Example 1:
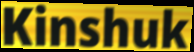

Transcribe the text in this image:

Kinshuk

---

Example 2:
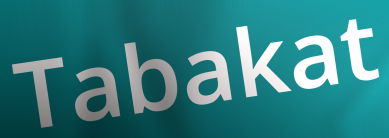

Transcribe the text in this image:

Tabakat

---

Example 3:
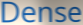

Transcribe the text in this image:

Dense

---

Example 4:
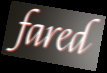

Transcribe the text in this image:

fared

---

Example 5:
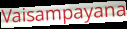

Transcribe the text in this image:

Vaisampayana